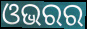
ଓଭରର